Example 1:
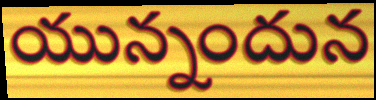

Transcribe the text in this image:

యున్నందున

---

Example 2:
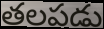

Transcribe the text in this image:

తలపడు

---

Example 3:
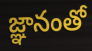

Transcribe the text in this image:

జ్ఞానంతో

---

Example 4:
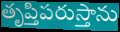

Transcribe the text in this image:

తృప్తిపరుస్తాను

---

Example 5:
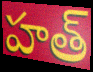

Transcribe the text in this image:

హత్